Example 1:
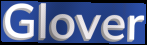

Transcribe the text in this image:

Glover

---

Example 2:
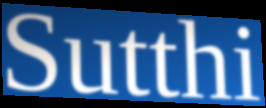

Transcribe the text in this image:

Sutthi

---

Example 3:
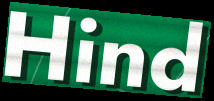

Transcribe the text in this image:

Hind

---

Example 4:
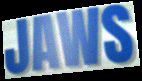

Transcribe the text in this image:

JAWS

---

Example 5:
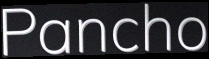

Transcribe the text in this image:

Pancho